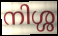
നിശ്ശ